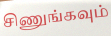
சிணுங்கவும்